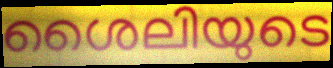
ശൈലിയുടെ